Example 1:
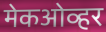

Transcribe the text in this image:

मेकओव्हर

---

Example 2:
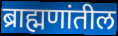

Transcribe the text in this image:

ब्राह्मणांतील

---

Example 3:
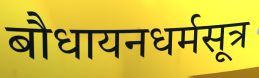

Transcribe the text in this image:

बौधायनधर्मसूत्र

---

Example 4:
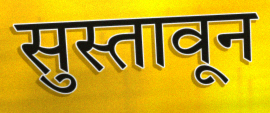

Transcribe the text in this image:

सुस्तावून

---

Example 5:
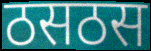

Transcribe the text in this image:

ठसठस